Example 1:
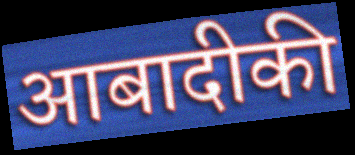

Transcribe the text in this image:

आबादीकी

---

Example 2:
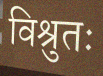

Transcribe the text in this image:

विश्रुतः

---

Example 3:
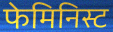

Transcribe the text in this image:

फेमिनिस्ट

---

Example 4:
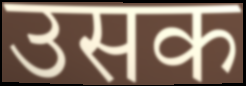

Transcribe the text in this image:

उसक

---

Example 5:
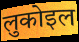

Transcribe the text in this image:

लुकोइल